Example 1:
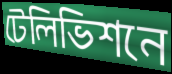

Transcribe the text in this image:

টেলিভিশনে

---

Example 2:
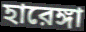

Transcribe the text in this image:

হারেঙ্গা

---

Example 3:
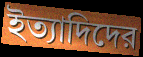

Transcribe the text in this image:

ইত্যাদিদের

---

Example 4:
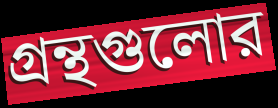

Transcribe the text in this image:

গ্রন্থগুলোর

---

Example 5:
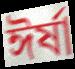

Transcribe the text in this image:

ঈর্ষা